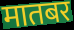
मातबर